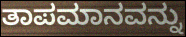
ತಾಪಮಾನವನ್ನು